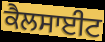
ਕੈਲਸਾਈਟ